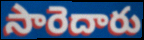
సారెదారు